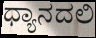
ಧ್ಯಾನದಲಿ